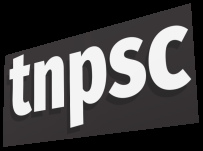
tnpsc